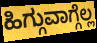
ಹಿಗ್ಗುವಾಗ್ಗೆಲ್ಲ